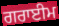
ਗਰਾਈਮ